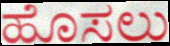
ಹೊಸಲು